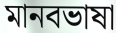
মানবভাষা